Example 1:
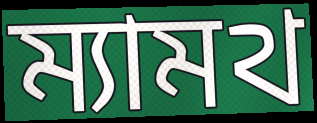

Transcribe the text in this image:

ম্যামথ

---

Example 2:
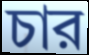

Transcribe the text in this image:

চার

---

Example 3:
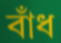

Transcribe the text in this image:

বাঁধ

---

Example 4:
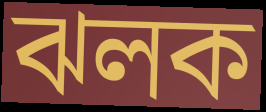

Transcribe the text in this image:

ঝলক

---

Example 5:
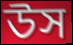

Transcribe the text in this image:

উস